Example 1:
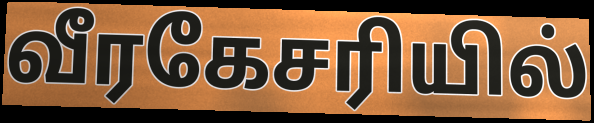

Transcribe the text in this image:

வீரகேசரியில்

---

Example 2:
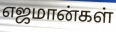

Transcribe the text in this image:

எஜமான்கள்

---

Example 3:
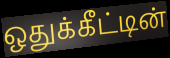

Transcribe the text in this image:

ஒதுக்கீட்டின்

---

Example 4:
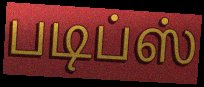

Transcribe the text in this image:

படிப்ஸ்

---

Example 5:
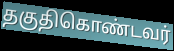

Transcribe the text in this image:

தகுதிகொண்டவர்